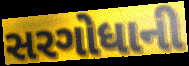
સરગોધાની